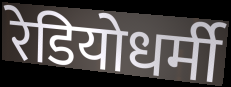
रेडियोधर्मी